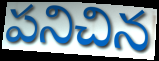
పనిచిన